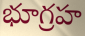
భూగ్రహ